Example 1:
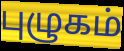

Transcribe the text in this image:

புழுகம்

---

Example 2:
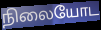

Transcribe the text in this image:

நிலையோட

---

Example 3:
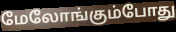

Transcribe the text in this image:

மேலோங்கும்போது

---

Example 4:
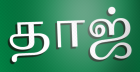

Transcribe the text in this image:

தாஜ்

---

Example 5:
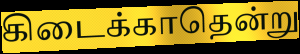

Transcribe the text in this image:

கிடைக்காதென்று